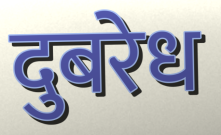
दुबरेध